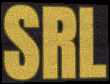
SRL